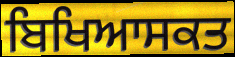
ਬਿਖਿਆਸਕਤ